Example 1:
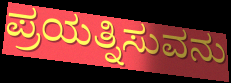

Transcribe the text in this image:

ಪ್ರಯತ್ನಿಸುವನು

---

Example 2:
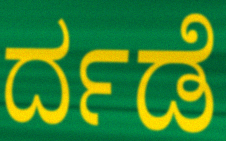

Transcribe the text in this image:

ರ್ದಡೆ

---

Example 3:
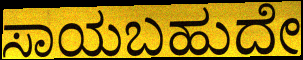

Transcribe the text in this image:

ಸಾಯಬಹುದೇ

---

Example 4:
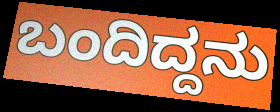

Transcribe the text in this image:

ಬಂದಿದ್ದನು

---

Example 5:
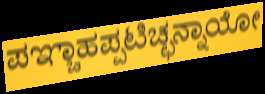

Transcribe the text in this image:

ಪಞ್ಚಾಹಪ್ಪಟಿಚ್ಛನ್ನಾಯೋ